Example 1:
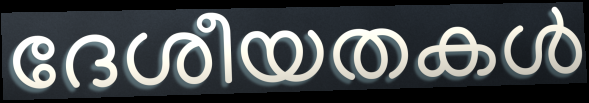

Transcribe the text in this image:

ദേശീയതകൾ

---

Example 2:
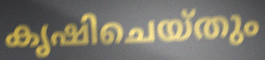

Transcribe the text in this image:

കൃഷിചെയ്തും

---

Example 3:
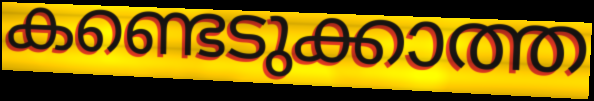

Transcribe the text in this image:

കണ്ടെടുക്കാത്ത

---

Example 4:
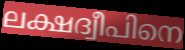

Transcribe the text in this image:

ലക്ഷദ്വീപിനെ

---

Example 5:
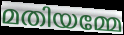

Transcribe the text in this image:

മതിയമ്മേ